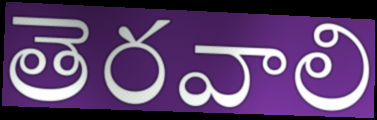
తెరవాలి